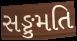
સઙ્કમતિ